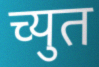
च्‍युत